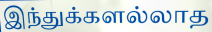
இந்துக்களல்லாத